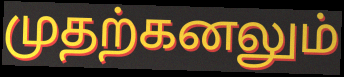
முதற்கனலும்